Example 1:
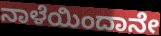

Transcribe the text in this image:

ನಾಳೆಯಿಂದಾನೇ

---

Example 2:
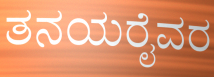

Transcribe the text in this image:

ತನಯರೈವರ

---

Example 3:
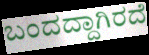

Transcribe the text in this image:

ಬಂದದ್ದಾಗಿರದೆ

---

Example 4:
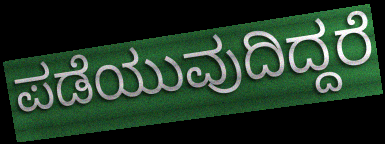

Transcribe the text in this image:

ಪಡೆಯುವುದಿದ್ದರೆ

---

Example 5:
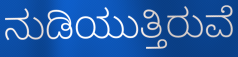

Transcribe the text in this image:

ನುಡಿಯುತ್ತಿರುವೆ